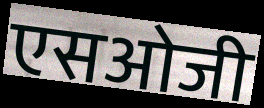
एसओजी